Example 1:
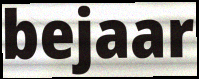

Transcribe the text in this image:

bejaar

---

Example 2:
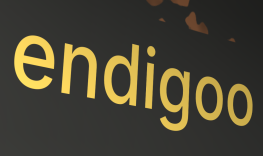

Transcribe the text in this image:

endigoo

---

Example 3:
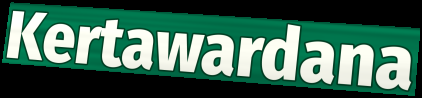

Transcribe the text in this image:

Kertawardana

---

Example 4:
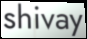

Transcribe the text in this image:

shivay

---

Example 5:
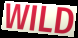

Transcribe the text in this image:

WILD